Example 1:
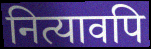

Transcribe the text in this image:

नित्यावपि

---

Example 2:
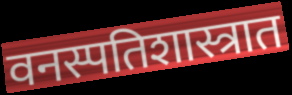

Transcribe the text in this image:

वनस्पतिशास्त्रात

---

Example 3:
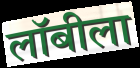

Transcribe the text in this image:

लॉबीला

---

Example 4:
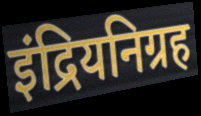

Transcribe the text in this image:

इंद्रियनिग्रह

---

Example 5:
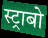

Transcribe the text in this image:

स्ट्राबो